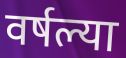
वर्षल्या